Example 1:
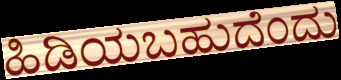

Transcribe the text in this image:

ಹಿಡಿಯಬಹುದೆಂದು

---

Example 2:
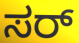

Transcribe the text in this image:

ಸರ್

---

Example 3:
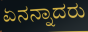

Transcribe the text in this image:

ಏನನ್ನಾದರು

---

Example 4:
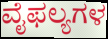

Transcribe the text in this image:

ವೈಫಲ್ಯಗಳ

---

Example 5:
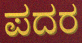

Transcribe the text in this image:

ಪದರ